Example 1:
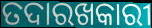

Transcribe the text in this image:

ତଦାରଖକାରୀ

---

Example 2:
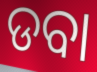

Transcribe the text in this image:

ଡବା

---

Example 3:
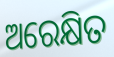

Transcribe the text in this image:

ଅରେକ୍ଷିତ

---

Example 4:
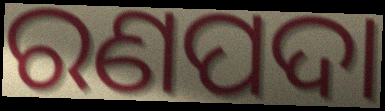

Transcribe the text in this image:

ରଣପଦା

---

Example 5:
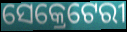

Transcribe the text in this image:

ସେକ୍ରେଟେରୀ